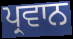
ਪ੍ਰਵਾਨ